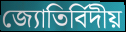
জ্যোতির্বিদীয়